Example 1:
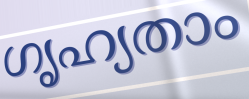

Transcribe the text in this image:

ഗൃഹ്യതാം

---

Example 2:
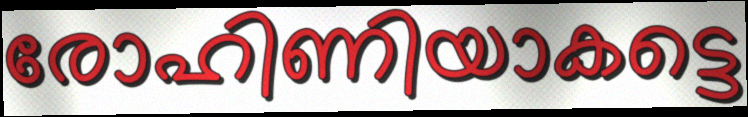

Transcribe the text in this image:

രോഹിണിയാകട്ടെ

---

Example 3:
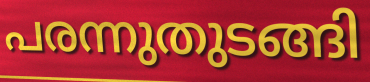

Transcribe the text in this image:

പരന്നുതുടങ്ങി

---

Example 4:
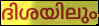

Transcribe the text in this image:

ദിശയിലും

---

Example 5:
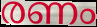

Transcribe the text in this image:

രണം